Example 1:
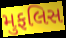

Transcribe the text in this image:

મુફલિસ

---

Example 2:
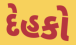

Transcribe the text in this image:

દેહકો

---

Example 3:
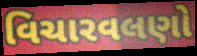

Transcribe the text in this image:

વિચારવલણો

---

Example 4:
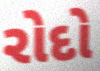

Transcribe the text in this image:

રોદો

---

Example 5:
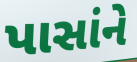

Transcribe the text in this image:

પાસાંને